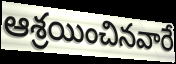
ఆశ్రయించినవారే